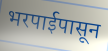
भरपाईपासून